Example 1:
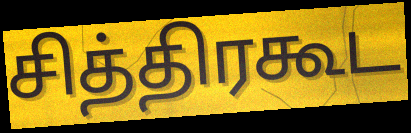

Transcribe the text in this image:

சித்திரகூட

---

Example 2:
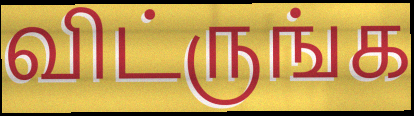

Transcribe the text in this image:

விட்ருங்க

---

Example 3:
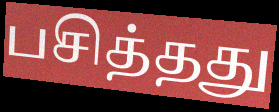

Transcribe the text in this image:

பசித்தது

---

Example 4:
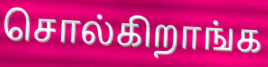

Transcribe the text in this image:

சொல்கிறாங்க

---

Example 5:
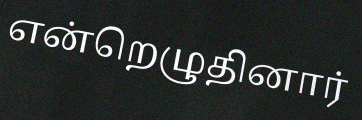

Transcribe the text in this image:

என்றெழுதினார்